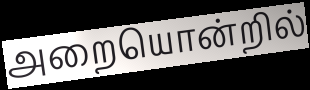
அறையொன்றில்